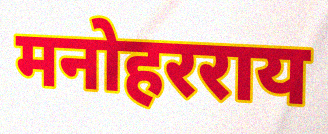
मनोहरराय